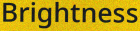
Brightness